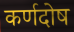
कर्णदोष